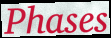
Phases